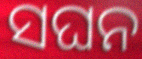
ସଘନ